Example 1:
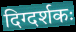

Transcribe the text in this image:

दिग्दर्शकः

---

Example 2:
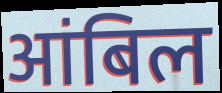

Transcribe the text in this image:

आंबिल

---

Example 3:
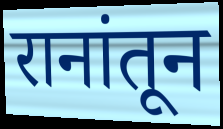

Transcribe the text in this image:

रानांतून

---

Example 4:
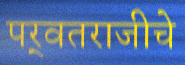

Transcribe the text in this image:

पर्वतराजीचे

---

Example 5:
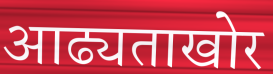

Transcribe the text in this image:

आढ्यताखोर